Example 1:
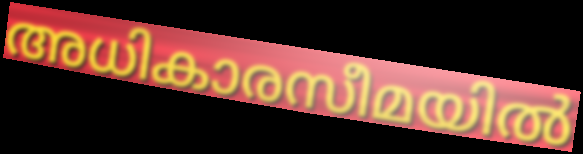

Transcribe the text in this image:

അധികാരസീമയിൽ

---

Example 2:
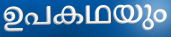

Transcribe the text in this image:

ഉപകഥയും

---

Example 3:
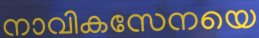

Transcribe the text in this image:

നാവികസേനയെ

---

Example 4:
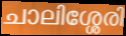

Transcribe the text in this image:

ചാലിശ്ശേരി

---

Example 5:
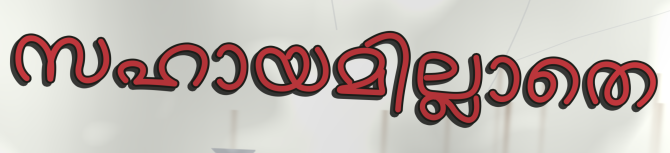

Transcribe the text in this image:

സഹായമില്ലാതെ